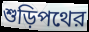
শুড়িপথের